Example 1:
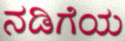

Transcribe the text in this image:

ನಡಿಗೆಯ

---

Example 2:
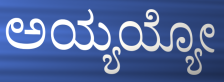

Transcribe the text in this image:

ಅಯ್ಯಯ್ಯೋ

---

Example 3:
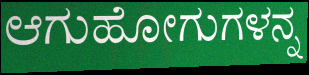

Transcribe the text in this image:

ಆಗುಹೋಗುಗಳನ್ನ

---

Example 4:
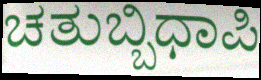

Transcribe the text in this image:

ಚತುಬ್ಬಿಧಾಪಿ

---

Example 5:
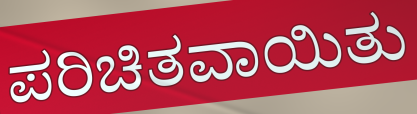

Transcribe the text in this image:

ಪರಿಚಿತವಾಯಿತು